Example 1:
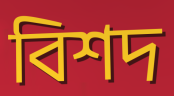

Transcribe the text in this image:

বিশদ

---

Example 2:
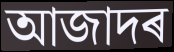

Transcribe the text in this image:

আজাদৰ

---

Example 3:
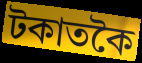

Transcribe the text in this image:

টকাতকৈ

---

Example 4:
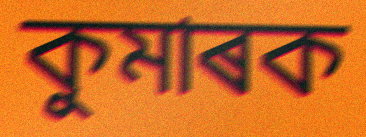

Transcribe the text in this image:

কুমাৰক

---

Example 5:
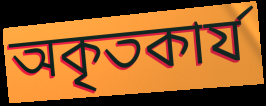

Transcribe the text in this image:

অকৃতকাৰ্য